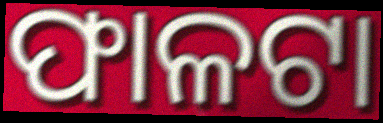
ଫାଳଟା